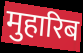
मुहारिब